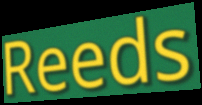
Reeds